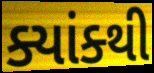
ક્યાંક્થી